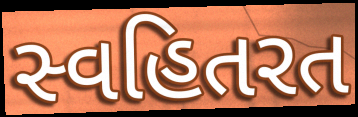
સ્વહિતરત